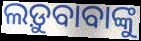
ଲଡ଼ୁବାବାଙ୍କୁ